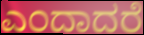
ಎಂದಾದರೆ